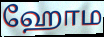
ஹோம